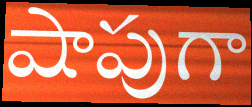
షాపుగా